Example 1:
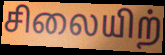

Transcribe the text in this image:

சிலையிற்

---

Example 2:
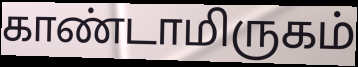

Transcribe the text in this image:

காண்டாமிருகம்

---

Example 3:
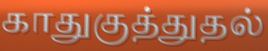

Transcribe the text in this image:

காதுகுத்துதல்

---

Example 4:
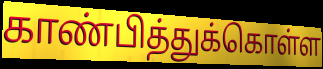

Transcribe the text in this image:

காண்பித்துக்கொள்ள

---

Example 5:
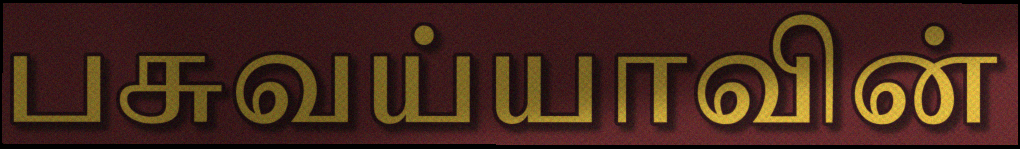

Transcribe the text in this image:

பசுவய்யாவின்